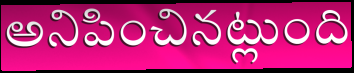
అనిపించినట్లుంది